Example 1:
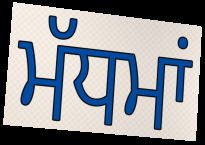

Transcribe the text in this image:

ਮੱਧਮਾਂ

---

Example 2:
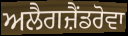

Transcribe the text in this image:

ਅਲੈਗਜ਼ੈਂਡਰੋਵਾ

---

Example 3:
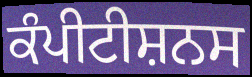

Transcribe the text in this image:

ਕੰਪੀਟੀਸ਼ਨਸ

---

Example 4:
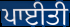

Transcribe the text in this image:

ਪਾਈਤੀ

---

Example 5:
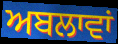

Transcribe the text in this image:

ਅਬਲਾਵਾਂ